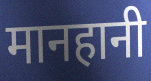
मानहानी